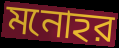
মনোহর